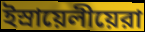
ইস্রায়েলীয়েরা